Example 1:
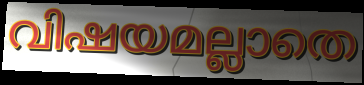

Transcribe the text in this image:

വിഷയമല്ലാതെ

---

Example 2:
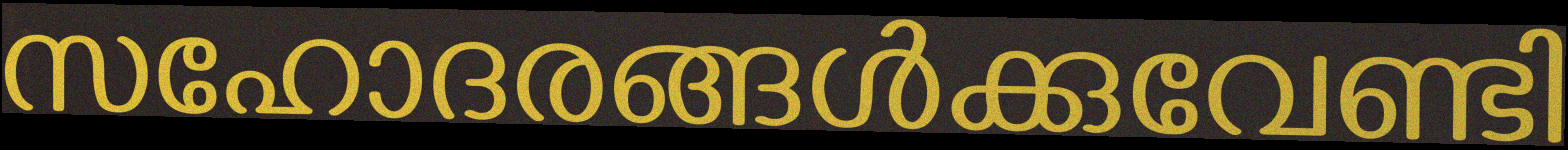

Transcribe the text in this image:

സഹോദരങ്ങൾക്കുവേണ്ടി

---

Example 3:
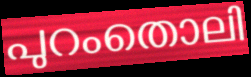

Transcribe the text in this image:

പുറംതൊലി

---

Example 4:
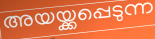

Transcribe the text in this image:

അയയ്ക്കപ്പെടുന്ന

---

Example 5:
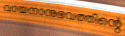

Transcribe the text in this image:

വായനാനുഭവത്തിന്റെ